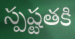
స్పష్టతకి